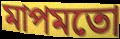
মাপমতো